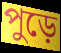
পুড়ে